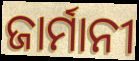
ଜାର୍ମାନୀ